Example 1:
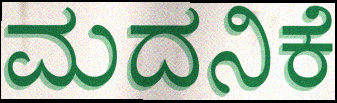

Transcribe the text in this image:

ಮದನಿಕೆ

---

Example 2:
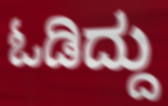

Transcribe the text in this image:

ಓಡಿದ್ದು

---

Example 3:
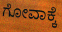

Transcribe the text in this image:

ಗೋವಾಕ್ಕೆ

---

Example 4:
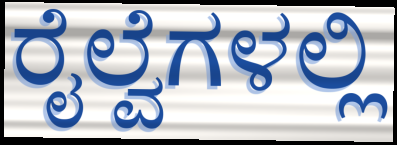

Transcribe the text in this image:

ರೈಲ್ವೆಗಳಲ್ಲಿ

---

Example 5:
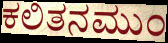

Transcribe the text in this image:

ಕಲಿತನಮುಂ